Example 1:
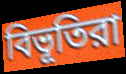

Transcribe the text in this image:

বিভূতিরা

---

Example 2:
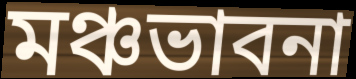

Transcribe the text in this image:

মঞ্চভাবনা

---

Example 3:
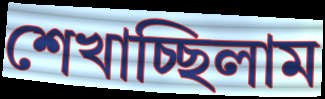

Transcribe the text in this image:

শেখাচ্ছিলাম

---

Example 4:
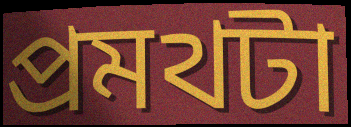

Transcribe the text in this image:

প্রমথটা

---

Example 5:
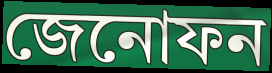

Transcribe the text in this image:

জেনোফন